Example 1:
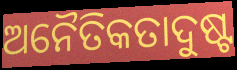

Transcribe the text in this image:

ଅନୈତିକତାଦୁଷ୍ଟ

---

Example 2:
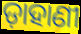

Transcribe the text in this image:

ଡ଼ାହାଣୀ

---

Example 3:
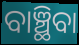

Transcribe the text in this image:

ବାଞ୍ଛିବା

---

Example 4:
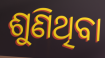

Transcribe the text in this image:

ଶୁଣିଥିବା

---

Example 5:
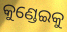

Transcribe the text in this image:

କୁଣ୍ଡେଇକୁ